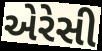
એરેસી